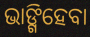
ଭାଙ୍ଗିହେବା